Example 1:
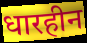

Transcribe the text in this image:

धारहीन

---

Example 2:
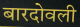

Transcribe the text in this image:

बारदोवली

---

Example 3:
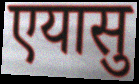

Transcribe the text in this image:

एयासु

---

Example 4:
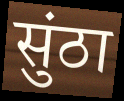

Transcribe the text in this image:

सुंठा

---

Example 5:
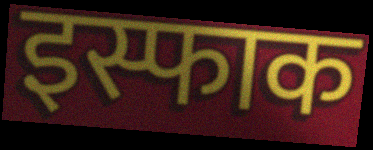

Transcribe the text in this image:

इस्फाक